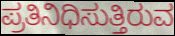
ಪ್ರತಿನಿಧಿಸುತ್ತಿರುವ